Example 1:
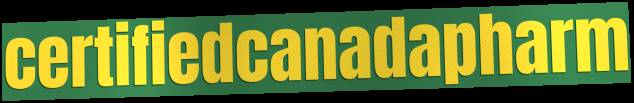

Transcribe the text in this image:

certifiedcanadapharm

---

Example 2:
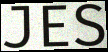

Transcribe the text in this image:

JES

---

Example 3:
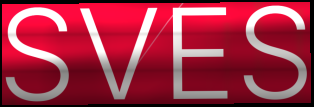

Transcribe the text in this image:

SVES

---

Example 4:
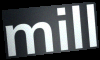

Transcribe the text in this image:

mill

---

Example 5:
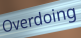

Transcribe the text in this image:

Overdoing